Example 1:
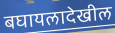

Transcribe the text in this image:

बघायलादेखील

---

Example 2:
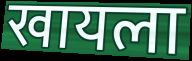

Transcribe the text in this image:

खायला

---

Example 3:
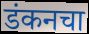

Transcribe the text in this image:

डंकनचा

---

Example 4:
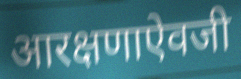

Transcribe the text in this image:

आरक्षणाऐवजी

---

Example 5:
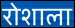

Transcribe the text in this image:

रोशाला